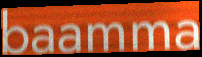
baamma